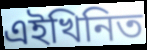
এইখিনিত